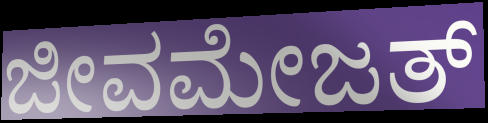
ಜೀವಮೇಜತ್